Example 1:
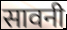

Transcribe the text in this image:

सावनी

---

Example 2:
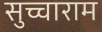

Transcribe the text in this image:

सुच्चाराम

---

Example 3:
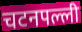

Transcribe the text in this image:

चटनपल्ली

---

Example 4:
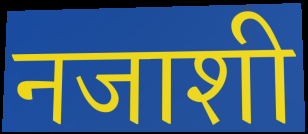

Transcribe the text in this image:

नजाशी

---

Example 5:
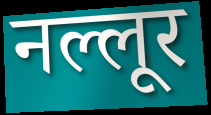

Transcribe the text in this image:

नल्लूर